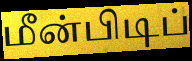
மீன்பிடிப்